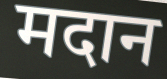
मदान